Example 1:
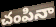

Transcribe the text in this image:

చంపినా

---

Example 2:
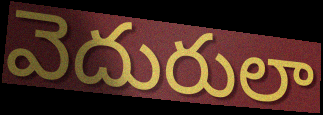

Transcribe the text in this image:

వెదురులా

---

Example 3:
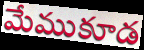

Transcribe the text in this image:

మేముకూడ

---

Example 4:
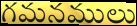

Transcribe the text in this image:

గమనములు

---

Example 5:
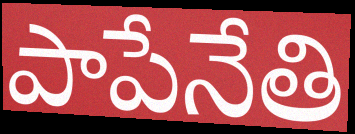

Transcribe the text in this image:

పాపేనేతి